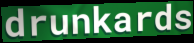
drunkards